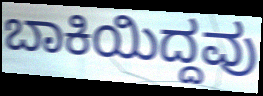
ಬಾಕಿಯಿದ್ದವು